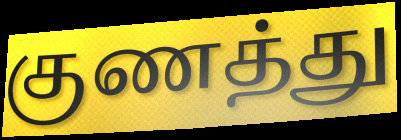
குணத்து